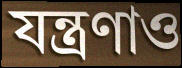
যন্ত্রণাও